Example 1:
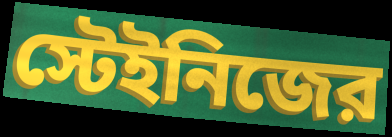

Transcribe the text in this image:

স্টেইনিজের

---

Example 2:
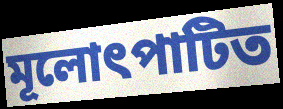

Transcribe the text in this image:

মূলোৎপাটিত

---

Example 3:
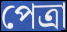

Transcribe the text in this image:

পেত্রা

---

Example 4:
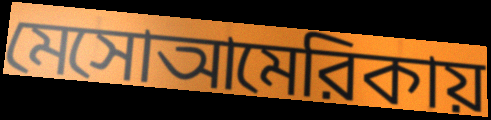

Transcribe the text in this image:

মেসোআমেরিকায়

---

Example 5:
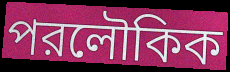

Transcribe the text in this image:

পরলৌকিক